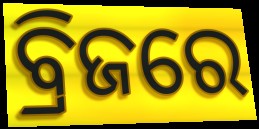
ବ୍ରିଜରେ